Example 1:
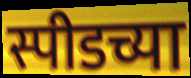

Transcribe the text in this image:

स्पीडच्या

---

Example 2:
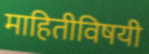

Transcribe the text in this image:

माहितीविषयी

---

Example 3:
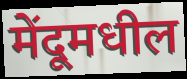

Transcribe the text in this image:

मेंदूमधील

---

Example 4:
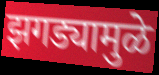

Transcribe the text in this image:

झगड्यामुळे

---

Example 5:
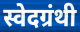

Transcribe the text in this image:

स्वेदग्रंथी